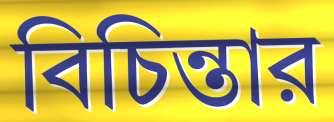
বিচিন্তার